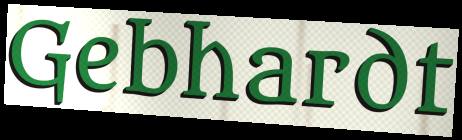
Gebhardt